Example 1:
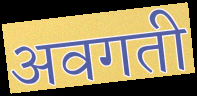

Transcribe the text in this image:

अवगती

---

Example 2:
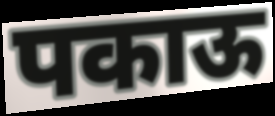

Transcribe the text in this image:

पकाऊ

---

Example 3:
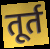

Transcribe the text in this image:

तूर्त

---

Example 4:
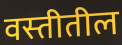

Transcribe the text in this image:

वस्तीतील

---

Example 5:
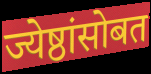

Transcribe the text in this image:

ज्येष्ठांसोबत